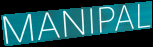
MANIPAL